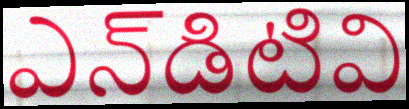
ఎన్‌డిటివి